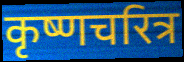
कृष्णचरित्र